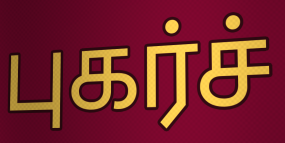
புகர்ச்